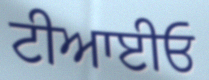
ਟੀਆਈਓ